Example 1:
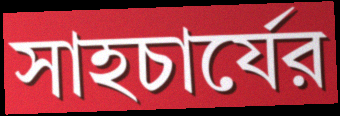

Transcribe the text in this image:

সাহচার্যের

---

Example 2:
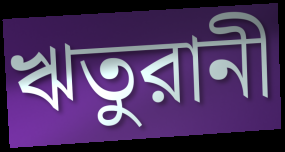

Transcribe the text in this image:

ঋতুরানী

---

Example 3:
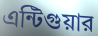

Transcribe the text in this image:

এন্টিগুয়ার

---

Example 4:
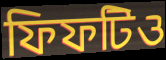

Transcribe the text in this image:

ফিফটিও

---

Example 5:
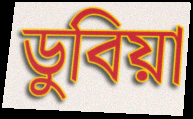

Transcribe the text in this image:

ডুবিয়া